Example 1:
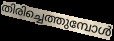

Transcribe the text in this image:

തിരിച്ചെത്തുമ്പോൾ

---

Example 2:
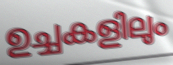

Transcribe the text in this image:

ഉച്ചകളിലും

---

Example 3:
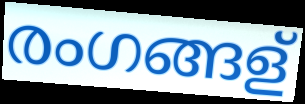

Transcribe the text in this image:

രംഗങ്ങള്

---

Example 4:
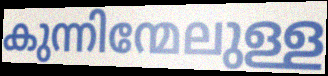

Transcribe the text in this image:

കുന്നിന്മേലുള്ള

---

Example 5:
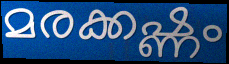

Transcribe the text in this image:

മരക്കഷ്ണം